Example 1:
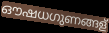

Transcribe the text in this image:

ഔഷധഗുണങ്ങള്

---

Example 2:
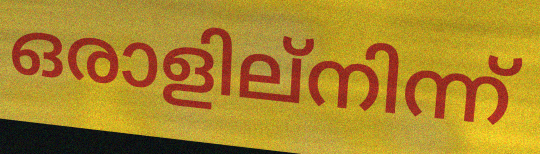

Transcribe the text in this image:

ഒരാളില്നിന്ന്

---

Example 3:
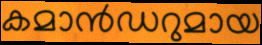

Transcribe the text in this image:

കമാൻഡറുമായ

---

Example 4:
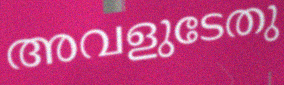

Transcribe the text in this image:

അവളുടേതു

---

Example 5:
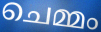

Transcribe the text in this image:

ചെമ്മം